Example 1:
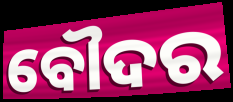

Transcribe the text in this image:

ବୌଦର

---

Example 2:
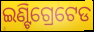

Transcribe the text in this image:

ଇଣ୍ଟିଗ୍ରେଟେଡ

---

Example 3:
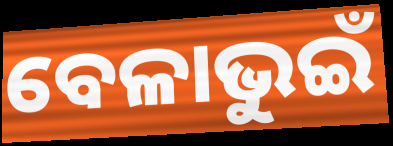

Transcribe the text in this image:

ବେଳାଭୁଇଁ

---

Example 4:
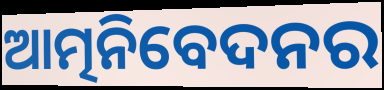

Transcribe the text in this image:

ଆତ୍ମନିବେଦନର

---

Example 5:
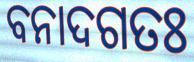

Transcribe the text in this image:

ବନାଦଗତଃ